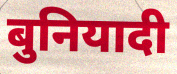
बुनियादी